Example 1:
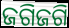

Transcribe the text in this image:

ଜଗିଜଗି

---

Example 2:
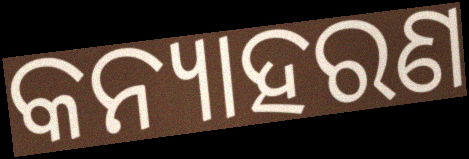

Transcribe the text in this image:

କନ୍ୟାହରଣ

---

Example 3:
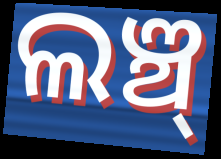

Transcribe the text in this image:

ଲଞ୍ଚ୍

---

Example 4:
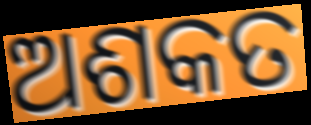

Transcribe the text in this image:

ଅଶକତ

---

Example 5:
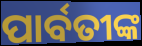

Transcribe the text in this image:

ପାର୍ବତୀଙ୍କ